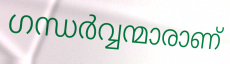
ഗന്ധർവ്വന്മാരാണ്